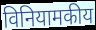
विनियामकीय